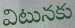
విటునకు